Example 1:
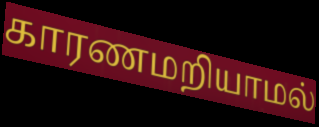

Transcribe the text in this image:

காரணமறியாமல்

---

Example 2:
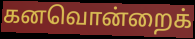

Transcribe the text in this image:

கனவொன்றைக்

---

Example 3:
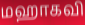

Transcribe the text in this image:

மஹாகவி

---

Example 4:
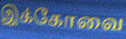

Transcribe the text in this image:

இக்கோவை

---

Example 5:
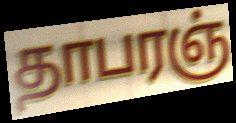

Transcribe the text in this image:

தாபரஞ்